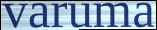
varuma